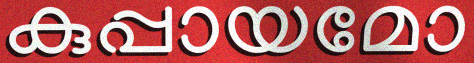
കുപ്പായമോ